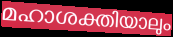
മഹാശക്തിയാലും